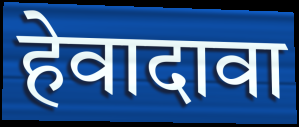
हेवादावा